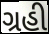
ગ્રહી